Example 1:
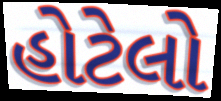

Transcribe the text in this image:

હોટેલો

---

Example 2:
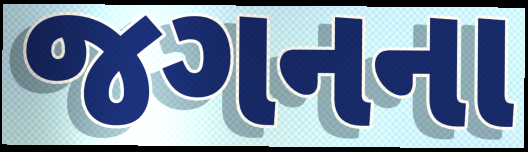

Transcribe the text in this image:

જગનના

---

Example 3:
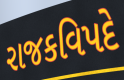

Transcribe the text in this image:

રાજકવિપદે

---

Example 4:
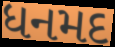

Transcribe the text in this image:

ધનમદ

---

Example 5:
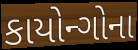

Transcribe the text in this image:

કાયોન્ગોના